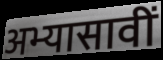
अभ्यासावीं